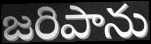
జరిపాను